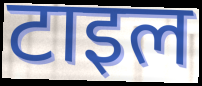
टाइल